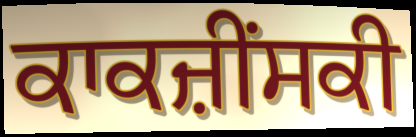
ਕਾਕਜ਼ੀੰਸਕੀ